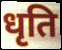
धृति